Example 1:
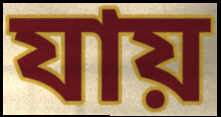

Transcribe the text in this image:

যায়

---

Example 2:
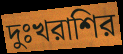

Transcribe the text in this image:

দুঃখরাশির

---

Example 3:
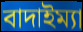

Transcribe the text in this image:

বাদাইম্যা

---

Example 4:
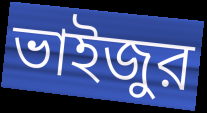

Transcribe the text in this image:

ভাইজুর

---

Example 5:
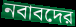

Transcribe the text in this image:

নবাবদের